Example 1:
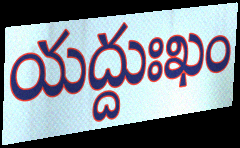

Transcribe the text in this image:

యద్దుఃఖం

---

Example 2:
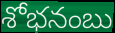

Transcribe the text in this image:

శోభనంబు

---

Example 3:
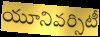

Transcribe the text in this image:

యూనివర్సిటీ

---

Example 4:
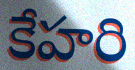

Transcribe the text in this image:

కేహరి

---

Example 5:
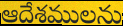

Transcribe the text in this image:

ఆదేశములను